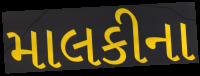
માલકીના